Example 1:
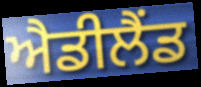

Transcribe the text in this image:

ਐਡੀਲੈਂਡ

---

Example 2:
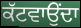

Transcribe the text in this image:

ਕੱਟਵਾਉਂਦਾ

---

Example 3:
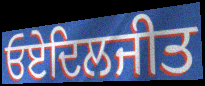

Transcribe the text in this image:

ਓਏਦਿਲਜੀਤ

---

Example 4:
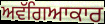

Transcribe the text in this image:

ਅਵੱਗਿਆਕਾਰ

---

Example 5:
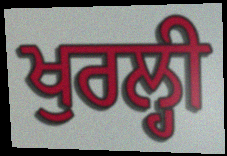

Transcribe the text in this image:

ਖੁਰਲ੍ਹੀ